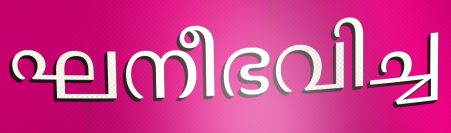
ഘനീഭവിച്ച